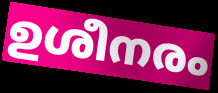
ഉശീനരം